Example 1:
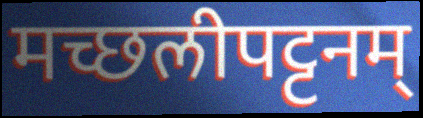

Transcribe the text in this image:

मच्छलीपट्टनम्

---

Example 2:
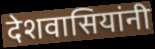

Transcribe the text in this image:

देशवासियांनी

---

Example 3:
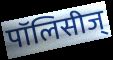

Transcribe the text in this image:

पॉलिसीज्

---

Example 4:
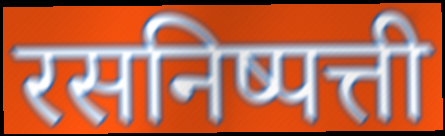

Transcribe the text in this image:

रसनिष्पत्ती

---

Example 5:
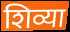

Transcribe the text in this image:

शिव्या